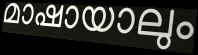
മാഷായാലും